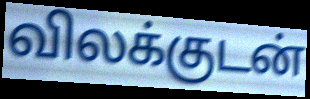
விலக்குடன்